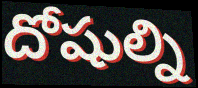
దోషుల్ని